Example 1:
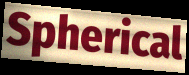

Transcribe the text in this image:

Spherical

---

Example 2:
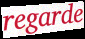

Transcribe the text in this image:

regarde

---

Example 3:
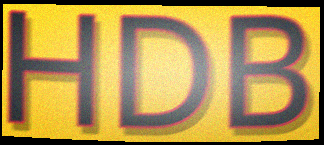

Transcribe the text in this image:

HDB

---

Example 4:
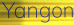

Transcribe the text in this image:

Yangon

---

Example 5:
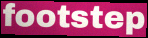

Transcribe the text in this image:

footstep